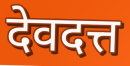
देवदत्त